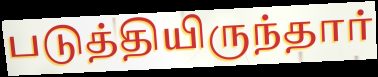
படுத்தியிருந்தார்